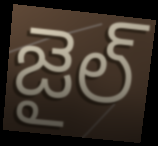
జైల్